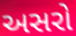
અસરો